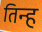
तिन्ह